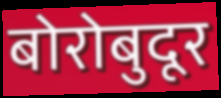
बोरोबुदूर